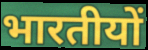
भारतीयों